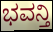
ಭವನ್ತಿ